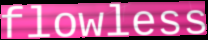
flowless